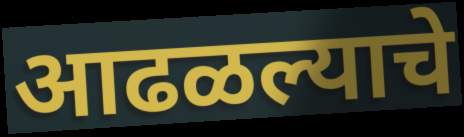
आढळल्याचे